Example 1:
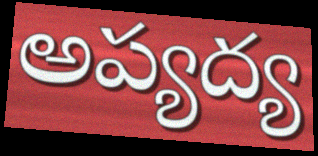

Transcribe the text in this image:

అప్యద్య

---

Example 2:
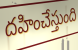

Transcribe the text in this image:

దహించేస్తుంది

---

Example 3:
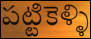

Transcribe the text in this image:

పట్టికెళ్ళి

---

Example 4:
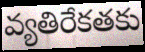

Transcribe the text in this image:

వ్యతిరేకతకు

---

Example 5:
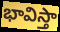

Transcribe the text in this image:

భావిస్తా